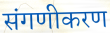
संगणीकरण